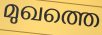
മുഖത്തെ